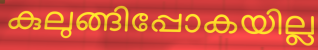
കുലുങ്ങിപ്പോകയില്ല